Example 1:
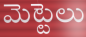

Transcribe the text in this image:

మెట్టెలు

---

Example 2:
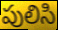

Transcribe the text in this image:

పులిసి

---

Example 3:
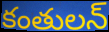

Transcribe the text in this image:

కంతులన్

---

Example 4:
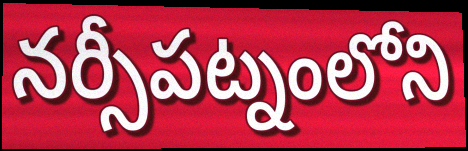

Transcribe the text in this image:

నర్సీపట్నంలోని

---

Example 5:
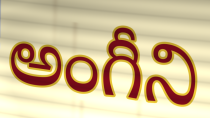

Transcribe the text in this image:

అంగీని